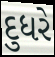
દુધરે